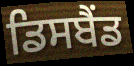
ਡਿਸਬੈਂਡ